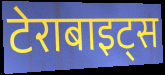
टेराबाइट्स